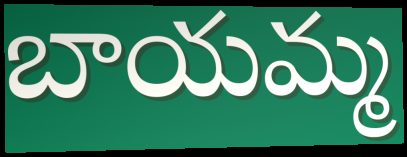
బాయమ్మ